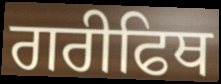
ਗਰੀਫਿਥ